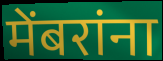
मेंबरांना